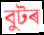
বুটৰ